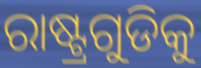
ରାଷ୍ଟ୍ରଗୁଡିକୁ